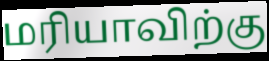
மரியாவிற்கு